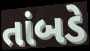
તાંબડે